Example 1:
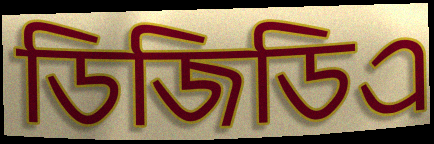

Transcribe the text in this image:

ডিজিডিএ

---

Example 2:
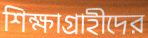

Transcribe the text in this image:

শিক্ষাগ্রাহীদের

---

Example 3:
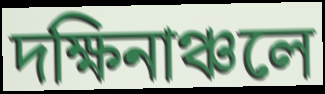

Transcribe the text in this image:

দক্ষিনাঞ্চলে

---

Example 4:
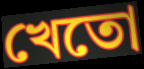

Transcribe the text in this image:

খেতো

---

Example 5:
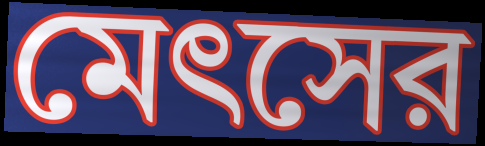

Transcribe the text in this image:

মেৎসের